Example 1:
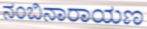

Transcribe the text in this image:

ನಂಬಿನಾರಾಯಣ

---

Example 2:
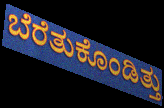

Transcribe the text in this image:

ಬೆರೆತುಕೊಂಡಿತ್ತು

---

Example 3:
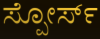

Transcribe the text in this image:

ಸ್ಪೋರ್ಸ್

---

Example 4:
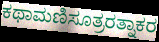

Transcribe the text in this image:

ಕಥಾಮಣಿಸೂತ್ರರತ್ನಾಕರ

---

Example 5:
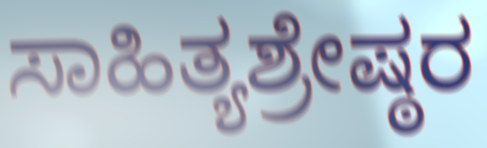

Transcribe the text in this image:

ಸಾಹಿತ್ಯಶ್ರೇಷ್ಠರ